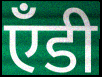
ऍंडी